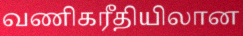
வணிகரீதியிலான